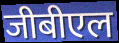
जीबीएल